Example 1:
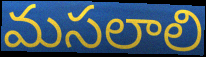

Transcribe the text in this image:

మసలాలి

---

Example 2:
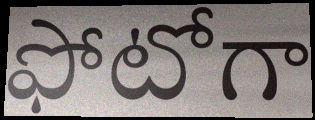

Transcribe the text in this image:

ఫోటోగా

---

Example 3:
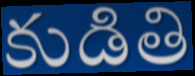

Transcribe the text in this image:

కుడితి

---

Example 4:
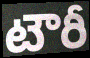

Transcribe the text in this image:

టౌరీ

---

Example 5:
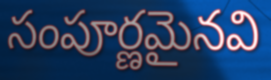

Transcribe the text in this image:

సంపూర్ణమైనవి